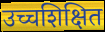
उच्चशिक्षित